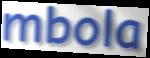
mbola